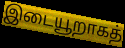
இடையூறாகத்